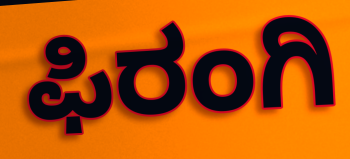
ಫಿರಂಗಿ